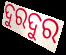
ଦୁରଦୁର